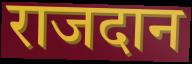
राजदान